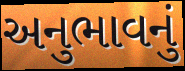
અનુભાવનું